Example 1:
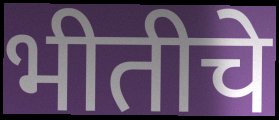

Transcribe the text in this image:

भीतीचे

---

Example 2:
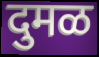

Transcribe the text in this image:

दुमळ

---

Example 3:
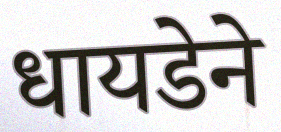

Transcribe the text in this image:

धायडेने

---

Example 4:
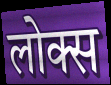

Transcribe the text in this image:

लोक्स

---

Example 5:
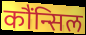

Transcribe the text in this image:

कौंन्सिल